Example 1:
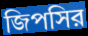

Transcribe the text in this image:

জিপসির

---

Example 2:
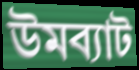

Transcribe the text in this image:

উমব্যাট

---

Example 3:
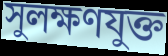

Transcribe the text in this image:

সুলক্ষণযুক্ত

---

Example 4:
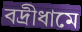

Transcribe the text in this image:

বদ্রীধামে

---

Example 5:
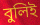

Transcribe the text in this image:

বুলিই